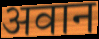
अवान